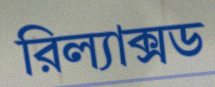
রিল্যাক্সড